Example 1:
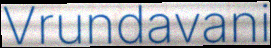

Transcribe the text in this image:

Vrundavani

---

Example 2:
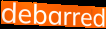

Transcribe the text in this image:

debarred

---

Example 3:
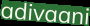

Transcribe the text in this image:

adivaani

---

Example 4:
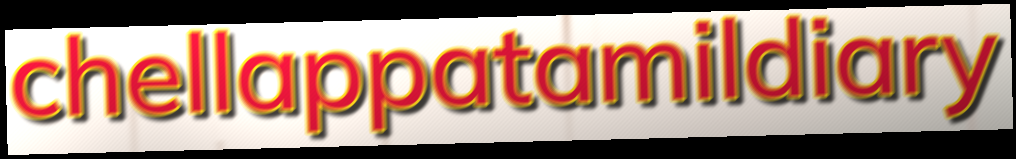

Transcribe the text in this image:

chellappatamildiary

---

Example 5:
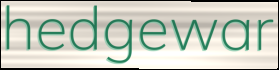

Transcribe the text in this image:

hedgewar